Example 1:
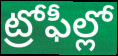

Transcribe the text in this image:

ట్రోఫీల్లో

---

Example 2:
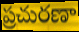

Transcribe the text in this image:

ప్రచురణా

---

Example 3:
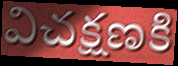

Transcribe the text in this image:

విచక్షణకి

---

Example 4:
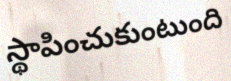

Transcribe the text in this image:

స్థాపించుకుంటుంది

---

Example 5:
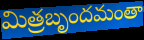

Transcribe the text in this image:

మిత్రబృందమంతా